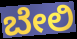
ಬೇಲಿ